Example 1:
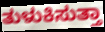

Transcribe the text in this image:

ತುಳುಕಿಸುತ್ತಾ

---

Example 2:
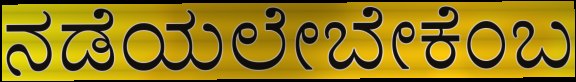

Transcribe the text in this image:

ನಡೆಯಲೇಬೇಕೆಂಬ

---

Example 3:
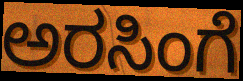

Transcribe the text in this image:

ಅರಸಿಂಗೆ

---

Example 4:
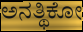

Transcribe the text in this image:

ಅನತ್ಥಿಕೋ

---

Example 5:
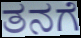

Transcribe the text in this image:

ತನಗೆ